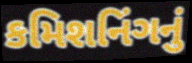
કમિશનિંગનું